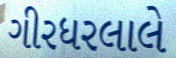
ગીરધરલાલે